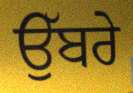
ਉੱਬਰੇ